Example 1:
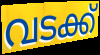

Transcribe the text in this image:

വടക്ക്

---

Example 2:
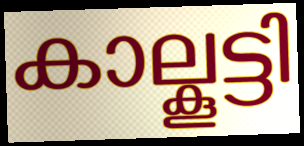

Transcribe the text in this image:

കാല്കൂട്ടി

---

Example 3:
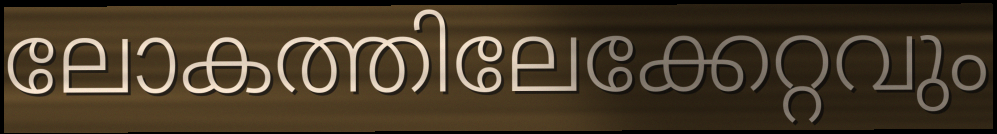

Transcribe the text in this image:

ലോകത്തിലേക്കേറ്റവും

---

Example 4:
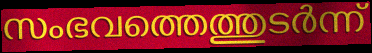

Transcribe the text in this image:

സംഭവത്തെത്തുടർന്ന്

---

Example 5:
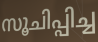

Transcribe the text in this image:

സൂചിപ്പിച്ച